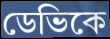
ডেভিকে